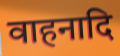
वाहनादि